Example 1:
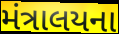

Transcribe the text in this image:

મંત્રાલયના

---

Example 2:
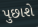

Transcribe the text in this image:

પુછાશે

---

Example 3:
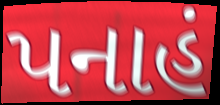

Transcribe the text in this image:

પનાહં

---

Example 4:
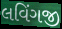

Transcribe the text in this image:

લવિંગજી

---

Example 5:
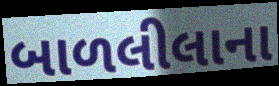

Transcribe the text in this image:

બાળલીલાના